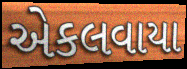
એકલવાયા